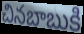
చినబాబుకి